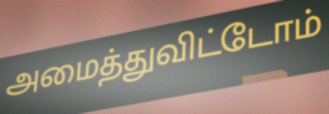
அமைத்துவிட்டோம்